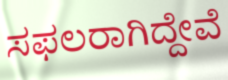
ಸಫಲರಾಗಿದ್ದೇವೆ